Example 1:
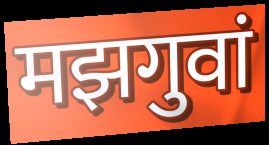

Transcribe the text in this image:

मझगुवां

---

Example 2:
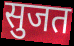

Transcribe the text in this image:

सुजत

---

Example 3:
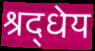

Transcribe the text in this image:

श्रद्धेय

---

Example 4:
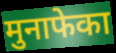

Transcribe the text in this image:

मुनाफेका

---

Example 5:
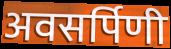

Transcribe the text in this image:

अवसर्पिणी